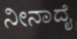
ನೀನಾದೈ